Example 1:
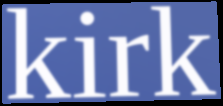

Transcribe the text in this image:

kirk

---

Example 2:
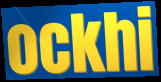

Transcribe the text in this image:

ockhi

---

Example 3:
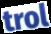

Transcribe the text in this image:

trol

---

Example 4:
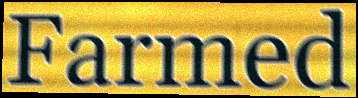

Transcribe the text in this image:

Farmed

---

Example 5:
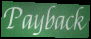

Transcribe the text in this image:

Payback